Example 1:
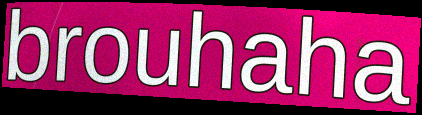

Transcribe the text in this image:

brouhaha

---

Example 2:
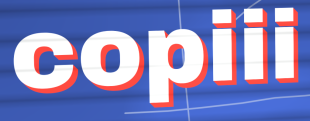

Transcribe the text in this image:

copiii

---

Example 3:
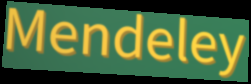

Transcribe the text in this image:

Mendeley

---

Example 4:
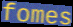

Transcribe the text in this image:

fomes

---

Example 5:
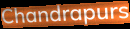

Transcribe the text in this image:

Chandrapurs